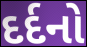
દર્દનો